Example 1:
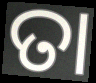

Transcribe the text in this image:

ତା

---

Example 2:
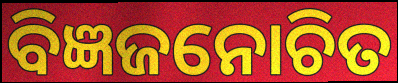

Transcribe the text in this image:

ବିଜ୍ଞଜନୋଚିତ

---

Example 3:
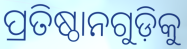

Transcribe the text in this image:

ପ୍ରତିଷ୍ଠାନଗୁଡ଼ିକୁ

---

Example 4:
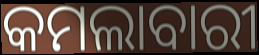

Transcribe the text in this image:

କମଲାବାରୀ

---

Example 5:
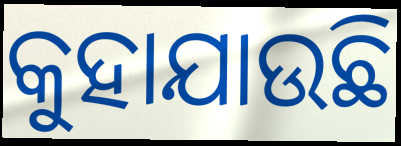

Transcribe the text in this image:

କୁହାଯାଉଛି